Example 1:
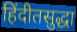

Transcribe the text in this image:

हिंदीतसुद्धा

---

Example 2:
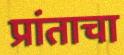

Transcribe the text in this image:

प्रांताचा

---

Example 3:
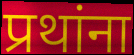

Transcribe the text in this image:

प्रथांना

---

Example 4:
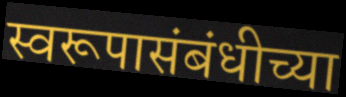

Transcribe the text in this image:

स्वरूपासंबंधीच्या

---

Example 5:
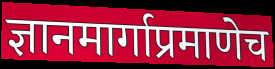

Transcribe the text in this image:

ज्ञानमार्गाप्रमाणेच